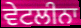
ਵੇਟਲੀਨਾ